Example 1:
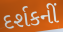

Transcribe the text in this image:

દર્શકનીં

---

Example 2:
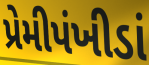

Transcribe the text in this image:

પ્રેમીપંખીડાં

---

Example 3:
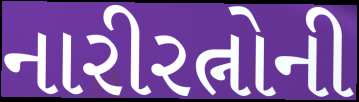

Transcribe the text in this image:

નારીરત્નોની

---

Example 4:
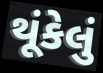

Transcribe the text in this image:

થૂંકેલું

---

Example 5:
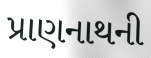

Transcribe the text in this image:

પ્રાણનાથની